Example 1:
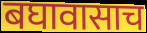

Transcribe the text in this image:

बघावासाच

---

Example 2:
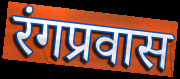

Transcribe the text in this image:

रंगप्रवास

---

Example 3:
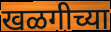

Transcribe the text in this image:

खळगीच्या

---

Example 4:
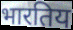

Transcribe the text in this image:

भारतिय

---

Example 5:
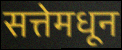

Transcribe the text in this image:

सत्तेमधून